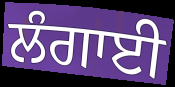
ਲੰਗਾਈ